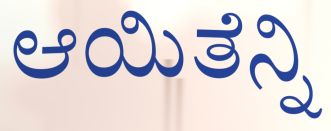
ಆಯಿತೆನ್ನಿ